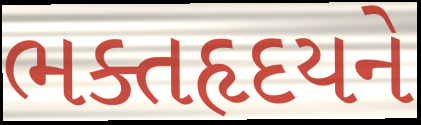
ભક્તહૃદયને